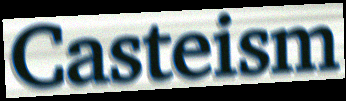
Casteism